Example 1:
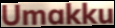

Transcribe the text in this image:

Umakku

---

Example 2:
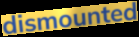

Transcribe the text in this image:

dismounted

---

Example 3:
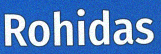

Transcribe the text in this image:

Rohidas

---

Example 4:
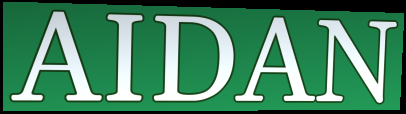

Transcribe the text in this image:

AIDAN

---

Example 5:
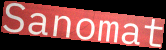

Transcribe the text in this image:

Sanomat